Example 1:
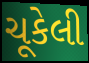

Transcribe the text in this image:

ચૂકેલી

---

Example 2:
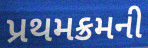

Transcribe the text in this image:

પ્રથમક્રમની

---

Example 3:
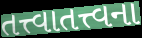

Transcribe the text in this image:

તત્ત્વાતત્ત્વના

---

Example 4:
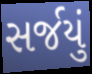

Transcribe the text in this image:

સર્જયું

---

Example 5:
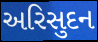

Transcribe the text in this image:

અરિસુદન